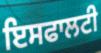
ਇਸਫਾਲਟੀ